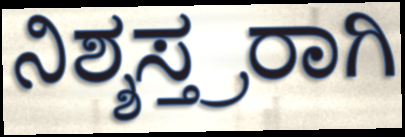
ನಿಶ್ಶಸ್ತ್ರರಾಗಿ